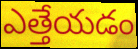
ఎత్తేయడం